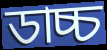
ডাচ্চ